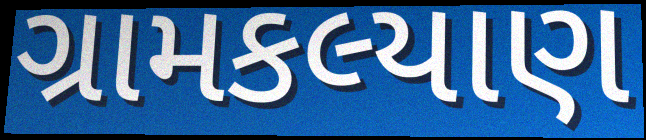
ગ્રામકલ્યાણ